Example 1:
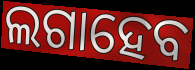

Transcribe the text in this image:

ଲଗାହେବ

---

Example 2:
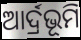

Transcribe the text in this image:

ଆର୍ଦ୍ରଭୂମି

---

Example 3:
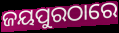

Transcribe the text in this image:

ଜୟପୁରଠାରେ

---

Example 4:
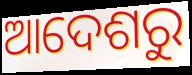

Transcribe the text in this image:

ଆଦେଶରୁ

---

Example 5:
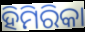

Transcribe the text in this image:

ହିମିରିକା